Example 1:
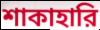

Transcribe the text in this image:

শাকাহারি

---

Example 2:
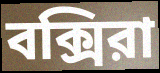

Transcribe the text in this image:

বক্সিরা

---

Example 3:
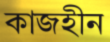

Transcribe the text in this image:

কাজহীন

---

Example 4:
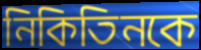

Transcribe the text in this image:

নিকিতিনকে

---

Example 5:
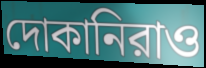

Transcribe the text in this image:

দোকানিরাও